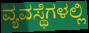
ವ್ಯವಸ್ಥೆಗಳಲ್ಲಿ